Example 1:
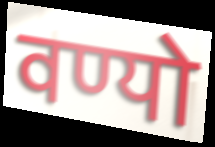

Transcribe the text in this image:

वण्यो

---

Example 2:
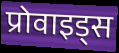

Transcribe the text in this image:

प्रोवाइड्स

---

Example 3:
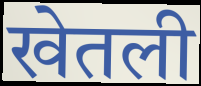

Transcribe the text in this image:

खेतली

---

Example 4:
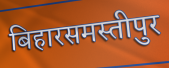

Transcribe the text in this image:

बिहारसमस्तीपुर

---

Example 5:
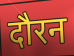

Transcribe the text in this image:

दौरन